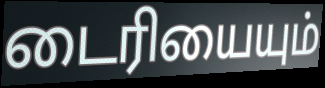
டைரியையும்